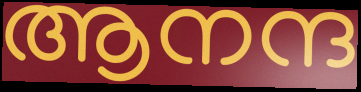
ആനന്ദ